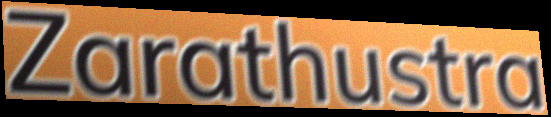
Zarathustra